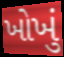
ખોખું